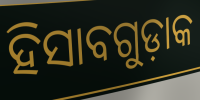
ହିସାବଗୁଡ଼ାକ